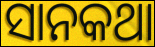
ସାନକଥା